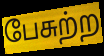
பேசுற்ற